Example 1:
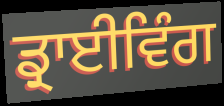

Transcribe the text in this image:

ਡ੍ਰਾਈਵਿੰਗ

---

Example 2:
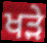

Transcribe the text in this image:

ਖੜੇ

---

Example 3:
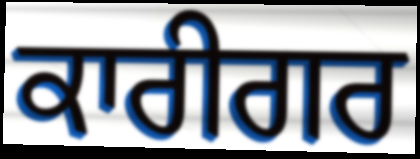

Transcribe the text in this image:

ਕਾਰੀਗਰ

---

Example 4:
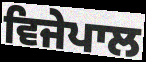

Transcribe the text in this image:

ਵਿਜੇਪਾਲ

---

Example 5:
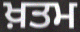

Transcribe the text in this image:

ਖ਼ਤਮ